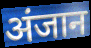
अंजान